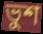
ভুশ